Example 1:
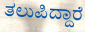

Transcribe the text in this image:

ತಲುಪಿದ್ದಾರೆ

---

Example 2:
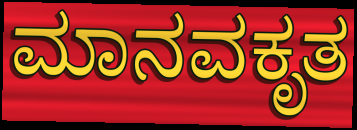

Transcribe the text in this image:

ಮಾನವಕೃತ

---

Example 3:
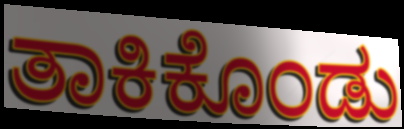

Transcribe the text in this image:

ತಾಕಿಕೊಂಡು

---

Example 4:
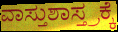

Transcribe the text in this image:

ವಾಸ್ತುಶಾಸ್ತ್ರಕ್ಕೆ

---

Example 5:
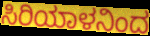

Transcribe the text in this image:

ಸಿರಿಯಾಳನಿಂದ